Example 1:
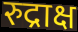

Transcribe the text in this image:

रुद्राक्ष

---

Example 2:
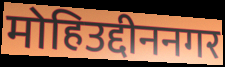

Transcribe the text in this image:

मोहिउद्दीननगर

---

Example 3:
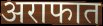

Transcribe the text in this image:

अराफात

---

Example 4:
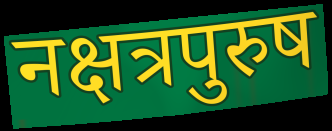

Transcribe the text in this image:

नक्षत्रपुरुष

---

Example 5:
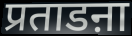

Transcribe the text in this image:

प्रताडऩा